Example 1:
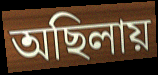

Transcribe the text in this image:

অছিলায়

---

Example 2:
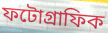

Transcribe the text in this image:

ফটোগ্রাফিক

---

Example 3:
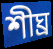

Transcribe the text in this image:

শীঘ্র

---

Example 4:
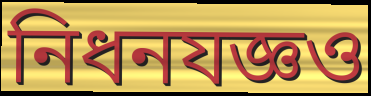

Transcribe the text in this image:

নিধনযজ্ঞও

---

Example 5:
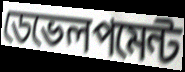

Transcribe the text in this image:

ডেভেলপমেন্ট